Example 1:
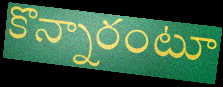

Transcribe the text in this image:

కొన్నారంటూ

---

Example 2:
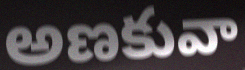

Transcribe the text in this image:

అణకువా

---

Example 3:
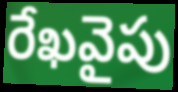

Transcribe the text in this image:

రేఖవైపు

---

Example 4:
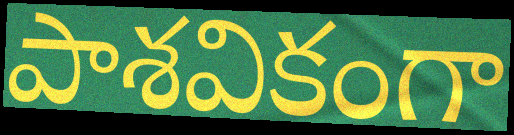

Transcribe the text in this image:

పాశవికంగా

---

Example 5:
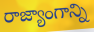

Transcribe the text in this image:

రాజ్యాంగాన్ని